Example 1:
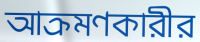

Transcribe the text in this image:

আক্রমণকারীর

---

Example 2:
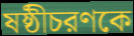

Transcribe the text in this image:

ষষ্ঠীচরণকে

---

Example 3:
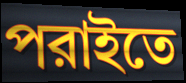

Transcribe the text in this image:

পরাইতে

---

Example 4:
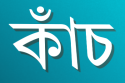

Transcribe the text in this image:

কাঁচ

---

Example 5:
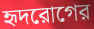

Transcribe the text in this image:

হৃদরোগের